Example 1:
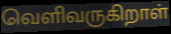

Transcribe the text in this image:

வெளிவருகிறாள்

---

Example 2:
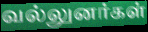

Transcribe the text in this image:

வல்லுனர்கள்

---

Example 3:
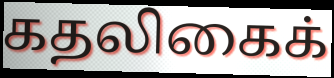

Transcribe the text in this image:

கதலிகைக்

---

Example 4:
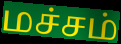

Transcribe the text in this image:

மச்சம்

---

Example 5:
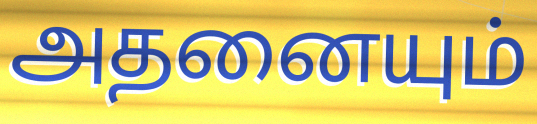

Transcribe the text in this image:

அதனையும்